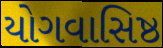
યોગવાસિષ્ઠ